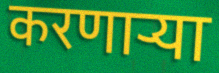
करणाऱ्या